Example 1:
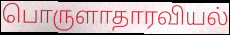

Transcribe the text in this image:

பொருளாதாரவியல்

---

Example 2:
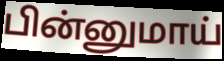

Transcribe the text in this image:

பின்னுமாய்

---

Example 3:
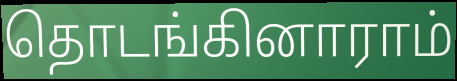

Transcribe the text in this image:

தொடங்கினாராம்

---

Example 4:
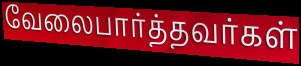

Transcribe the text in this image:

வேலைபார்த்தவர்கள்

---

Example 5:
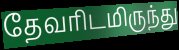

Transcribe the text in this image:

தேவரிடமிருந்து